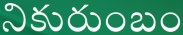
నికురుంబం